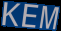
KEM